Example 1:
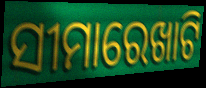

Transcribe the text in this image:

ସୀମାରେଖାଟି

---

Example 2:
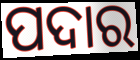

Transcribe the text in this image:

ପଦାର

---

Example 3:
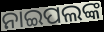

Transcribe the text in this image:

ନାଇପଲଙ୍କ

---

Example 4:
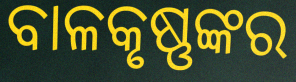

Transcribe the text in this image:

ବାଳକୃଷ୍ଣଙ୍କର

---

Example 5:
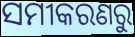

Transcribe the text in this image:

ସମୀକରଣରୁ